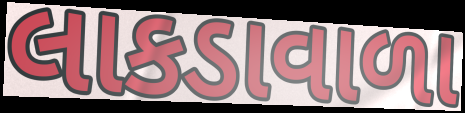
લાકડાવાળા